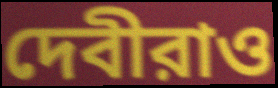
দেবীরাও